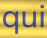
qui